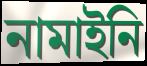
নামাইনি